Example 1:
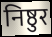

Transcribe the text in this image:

निष्ठुर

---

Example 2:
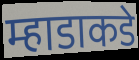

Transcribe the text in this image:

म्हाडाकडे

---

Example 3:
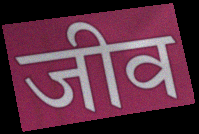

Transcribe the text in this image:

जीव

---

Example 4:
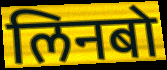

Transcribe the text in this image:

लिनबो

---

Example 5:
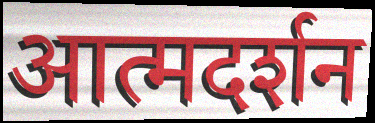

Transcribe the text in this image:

आत्मदर्शन